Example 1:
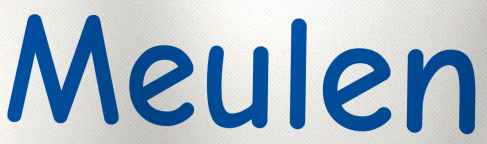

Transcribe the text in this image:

Meulen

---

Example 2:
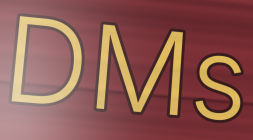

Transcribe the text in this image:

DMs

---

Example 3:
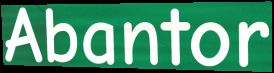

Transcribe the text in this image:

Abantor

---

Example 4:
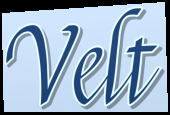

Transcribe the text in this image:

Velt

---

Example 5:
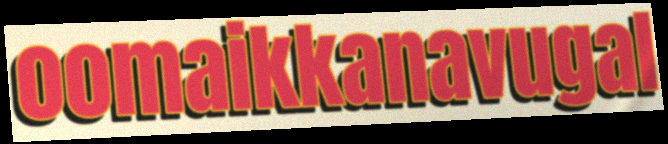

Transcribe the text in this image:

oomaikkanavugal